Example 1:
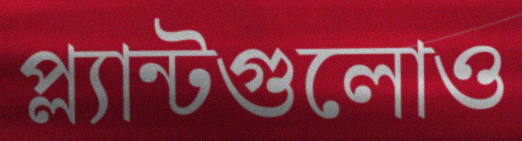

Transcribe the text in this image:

প্ল্যান্টগুলোও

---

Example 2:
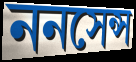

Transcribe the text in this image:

ননসেন্স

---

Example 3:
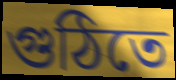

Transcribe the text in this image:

গুঠিতে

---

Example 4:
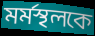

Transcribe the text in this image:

মর্মস্থলকে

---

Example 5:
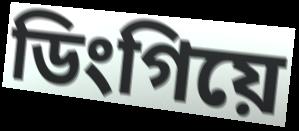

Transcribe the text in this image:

ডিংগিয়ে